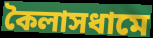
কৈলাসধামে